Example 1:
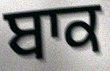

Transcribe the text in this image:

ਬਾਕ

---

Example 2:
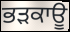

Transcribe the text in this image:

ਭੜਕਾਊ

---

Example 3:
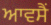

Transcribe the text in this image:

ਆਵਸੈਂ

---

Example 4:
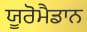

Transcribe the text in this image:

ਯੂਰੋਮੈਡਾਨ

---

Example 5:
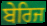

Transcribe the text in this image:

ਬੇਰਿਜ